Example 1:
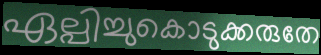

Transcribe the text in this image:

ഏല്പിച്ചുകൊടുക്കരുതേ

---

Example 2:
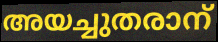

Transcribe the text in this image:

അയച്ചുതരാന്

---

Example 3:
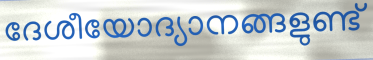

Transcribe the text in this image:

ദേശീയോദ്യാനങ്ങളുണ്ട്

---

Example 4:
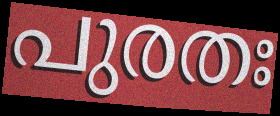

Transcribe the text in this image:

പുരതഃ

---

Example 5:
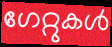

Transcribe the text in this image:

ഗേറ്റുകൾ